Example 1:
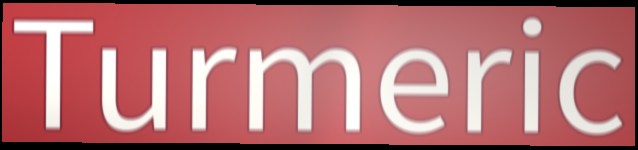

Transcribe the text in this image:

Turmeric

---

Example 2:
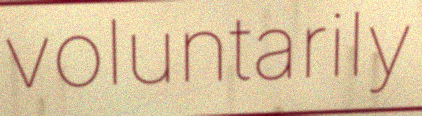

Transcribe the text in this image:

voluntarily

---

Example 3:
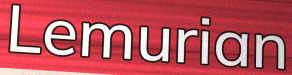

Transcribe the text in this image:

Lemurian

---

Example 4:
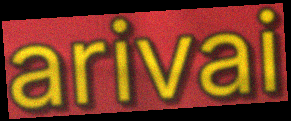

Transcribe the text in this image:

arivai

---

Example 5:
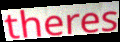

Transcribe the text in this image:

theres